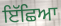
ਇੱਛਿਆ